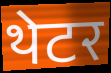
थेटर